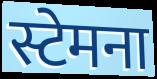
स्टेमना